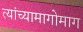
त्यांच्यामागोमाग